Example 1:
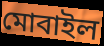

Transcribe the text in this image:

মোবাইল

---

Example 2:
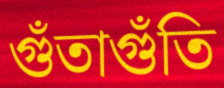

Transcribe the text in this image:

গুঁতাগুঁতি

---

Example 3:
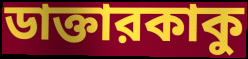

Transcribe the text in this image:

ডাক্তারকাকু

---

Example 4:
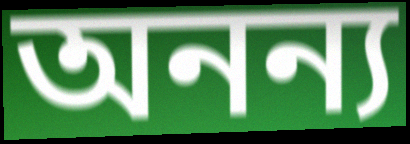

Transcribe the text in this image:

অনন্য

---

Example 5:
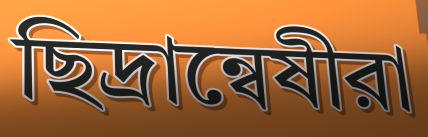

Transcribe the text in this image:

ছিদ্রান্বেষীরা